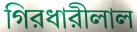
গিরধারীলাল